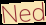
Ned